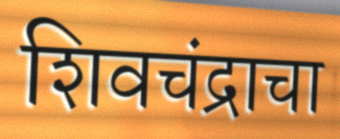
शिवचंद्राचा